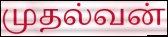
முதல்வன்